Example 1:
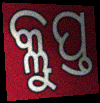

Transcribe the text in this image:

କ୍ଲୁପ୍ତ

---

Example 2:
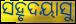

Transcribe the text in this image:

ସହୃଦୟାସୁ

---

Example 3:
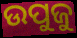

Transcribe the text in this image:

ଉପୁଜୁ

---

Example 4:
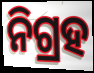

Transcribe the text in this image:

ନିଗ୍ରହ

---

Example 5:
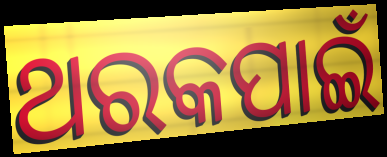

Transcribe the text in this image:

ଥରକପାଇଁ